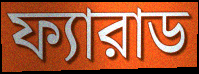
ফ্যারাড